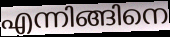
എന്നിങ്ങിനെ